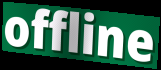
offline